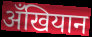
अँखियान